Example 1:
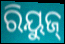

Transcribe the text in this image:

ରିୟୁଜ୍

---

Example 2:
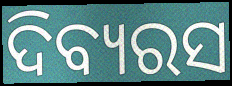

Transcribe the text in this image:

ଦିବ୍ୟରସ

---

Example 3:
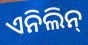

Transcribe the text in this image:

ଏନିଲିନ୍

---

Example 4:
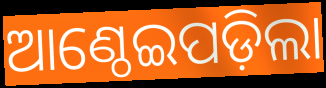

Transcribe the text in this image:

ଆଣ୍ଠେଇପଡ଼ିଲା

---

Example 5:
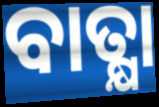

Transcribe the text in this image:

ବାତ୍କ୍ଷା